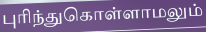
புரிந்துகொள்ளாமலும்